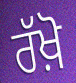
ਰੱਖ਼ੋ